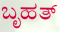
ಬೃಹತ್